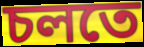
চলতে